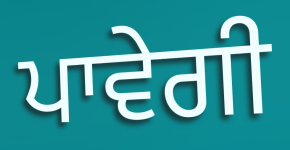
ਪਾਵੇਗੀ